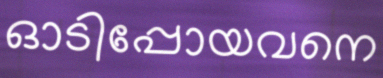
ഓടിപ്പോയവനെ